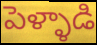
పెళ్ళాడి